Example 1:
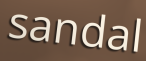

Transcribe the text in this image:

sandal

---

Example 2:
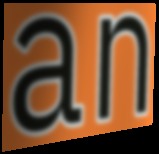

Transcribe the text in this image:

an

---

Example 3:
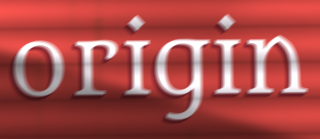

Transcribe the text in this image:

origin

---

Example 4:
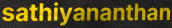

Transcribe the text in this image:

sathiyananthan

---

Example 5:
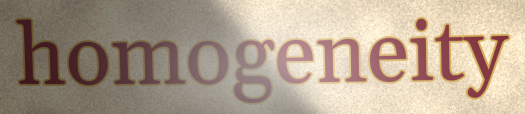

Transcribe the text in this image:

homogeneity